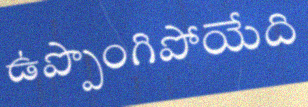
ఉప్పొంగిపోయేది